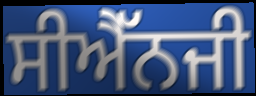
ਸੀਐੱਨਜੀ